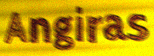
Angiras